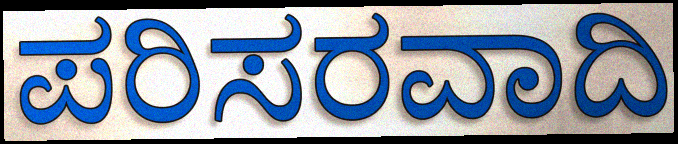
ಪರಿಸರವಾದಿ